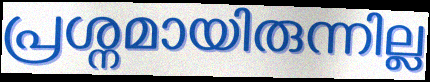
പ്രശ്നമായിരുന്നില്ല